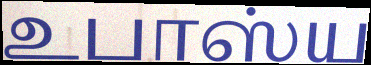
உபாஸ்ய